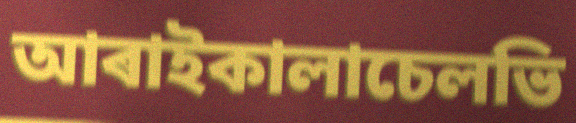
আৰাইকালাচেলভি